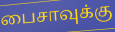
பைசாவுக்கு